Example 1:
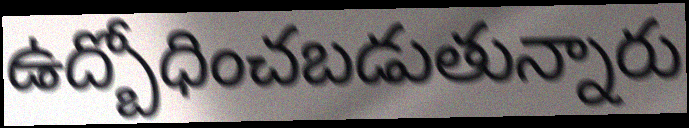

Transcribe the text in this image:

ఉద్బోధించబడుతున్నారు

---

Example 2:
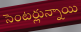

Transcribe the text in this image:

సెంటర్లున్నాయి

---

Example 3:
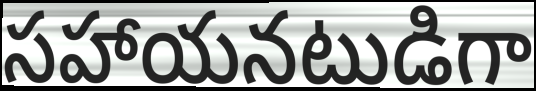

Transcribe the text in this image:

సహాయనటుడిగా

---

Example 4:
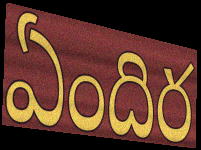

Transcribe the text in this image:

ఏందిర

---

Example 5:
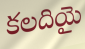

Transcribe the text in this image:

కలదియై